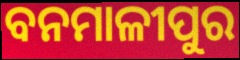
ବନମାଳୀପୁର